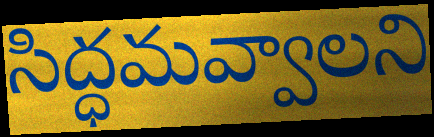
సిద్ధమవ్వాలని